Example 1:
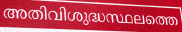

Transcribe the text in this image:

അതിവിശുദ്ധസ്ഥലത്തെ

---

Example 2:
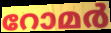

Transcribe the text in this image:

റോമർ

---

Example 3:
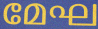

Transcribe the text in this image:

മേഘ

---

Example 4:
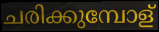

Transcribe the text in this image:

ചരിക്കുമ്പോള്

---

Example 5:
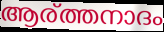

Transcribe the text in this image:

ആര്ത്തനാദം